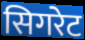
सिगरेट